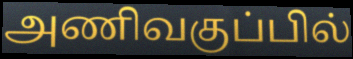
அணிவகுப்பில்